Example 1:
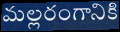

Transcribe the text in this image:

మల్లరంగానికి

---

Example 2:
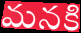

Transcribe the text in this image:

మనకి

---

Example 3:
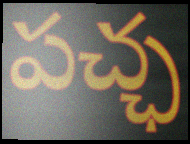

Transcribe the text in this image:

పచ్ఛ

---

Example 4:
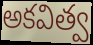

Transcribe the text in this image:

అకవిత్వ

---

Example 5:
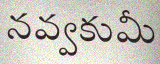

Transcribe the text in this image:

నవ్వకుమీ